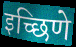
इच्छिणे